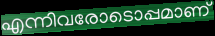
എന്നിവരോടൊപ്പമാണ്